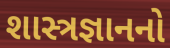
શાસ્ત્રજ્ઞાનનો